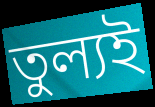
তুল্যই